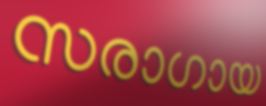
സരാഗായ